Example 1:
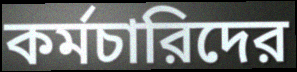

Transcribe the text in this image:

কর্মচারিদের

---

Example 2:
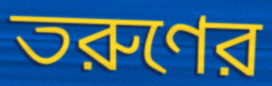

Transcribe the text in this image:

তরুণের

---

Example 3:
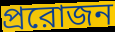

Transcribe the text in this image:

প্ররোজন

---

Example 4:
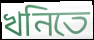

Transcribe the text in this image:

খনিতে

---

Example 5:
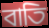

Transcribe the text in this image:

বাতি